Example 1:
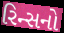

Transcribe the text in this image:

રિન્સનો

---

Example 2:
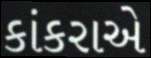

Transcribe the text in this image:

કાંકરાએ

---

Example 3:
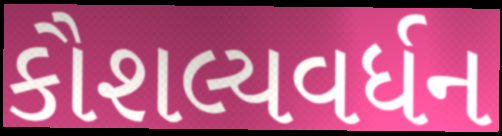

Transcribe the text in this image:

કૌશલ્યવર્ધન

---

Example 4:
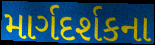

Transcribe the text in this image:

માર્ગદર્શકના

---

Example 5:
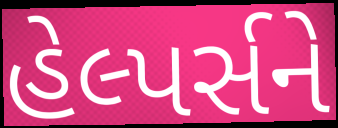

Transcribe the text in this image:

હેલ્પર્સને